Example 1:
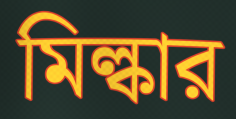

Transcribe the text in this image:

মিল্কার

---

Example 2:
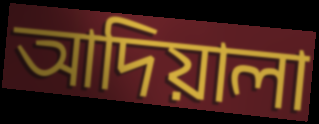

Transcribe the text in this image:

আদিয়ালা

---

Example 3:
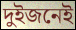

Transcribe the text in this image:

দুইজনেই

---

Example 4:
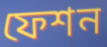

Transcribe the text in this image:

ফেশন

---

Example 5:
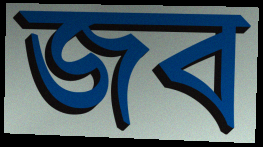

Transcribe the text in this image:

জব